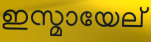
ഇസ്മായേല്